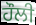
ਹੌਲੀ